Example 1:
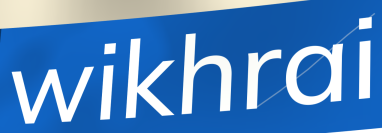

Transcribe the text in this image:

wikhrai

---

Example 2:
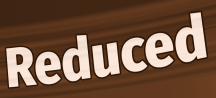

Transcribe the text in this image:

Reduced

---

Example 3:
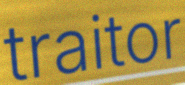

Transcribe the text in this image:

traitor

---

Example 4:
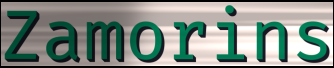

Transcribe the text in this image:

Zamorins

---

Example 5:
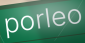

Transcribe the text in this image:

porleo